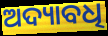
ଅଦ୍ୟାବଧି